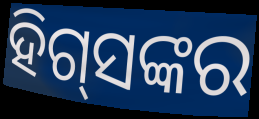
ହିଗ୍‌ସଙ୍କର